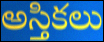
అస్తికలు